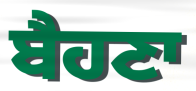
ਬੈਹਣਾ